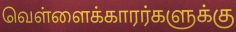
வெள்ளைக்காரர்களுக்கு